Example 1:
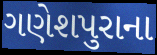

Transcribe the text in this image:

ગણેશપુરાના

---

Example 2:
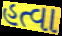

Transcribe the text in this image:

હત્વા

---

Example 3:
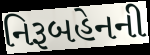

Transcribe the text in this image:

નિરૂબહેનની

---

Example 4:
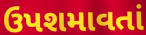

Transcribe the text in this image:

ઉપશમાવતાં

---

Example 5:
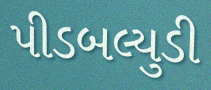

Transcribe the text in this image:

પીડબલ્યુડી